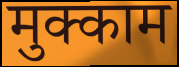
मुक्काम